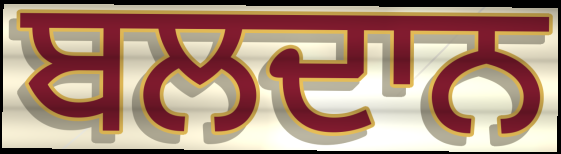
ਬਲਦਾਨ